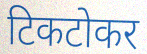
टिकटोकर